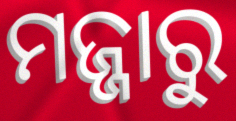
ମଜ୍ଜାରୁ